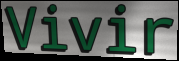
Vivir